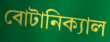
বোটানিক্যাল